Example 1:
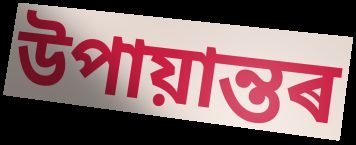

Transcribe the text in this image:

উপায়ান্তৰ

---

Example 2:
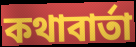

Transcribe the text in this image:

কথাবাৰ্তা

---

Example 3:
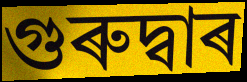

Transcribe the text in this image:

গুৰুদ্বাৰ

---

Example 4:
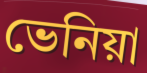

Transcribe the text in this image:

ভেনিয়া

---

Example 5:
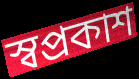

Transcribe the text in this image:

স্বপ্ৰকাশ